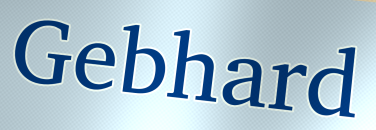
Gebhard